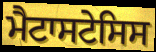
ਮੈਟਾਸਟੇਸਿਸ